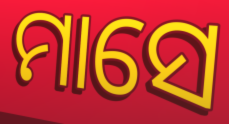
ମାସେ